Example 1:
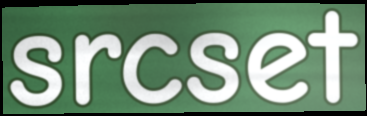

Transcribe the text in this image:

srcset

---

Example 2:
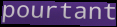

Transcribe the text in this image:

pourtant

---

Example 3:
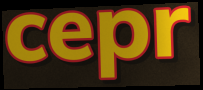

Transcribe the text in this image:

cepr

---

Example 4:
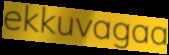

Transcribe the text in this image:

ekkuvagaa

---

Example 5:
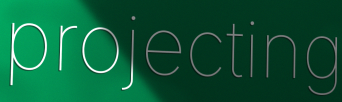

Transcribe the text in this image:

projecting